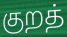
குறத்